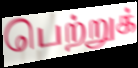
பெற்றுக்